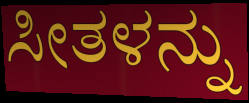
ಸೀತಳನ್ನು